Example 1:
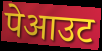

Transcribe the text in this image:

पेआउट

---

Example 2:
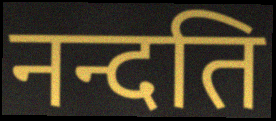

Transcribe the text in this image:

नन्दति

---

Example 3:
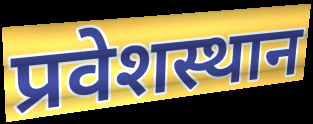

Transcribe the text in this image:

प्रवेशस्थान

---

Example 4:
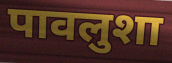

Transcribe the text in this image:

पावलुशा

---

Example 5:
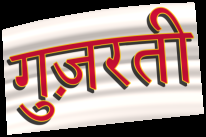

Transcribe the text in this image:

गुज़रती